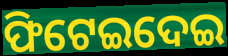
ଫିଟେଇଦେଇ